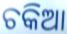
ଚକିଆ